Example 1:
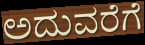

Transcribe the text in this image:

ಅದುವರೆಗೆ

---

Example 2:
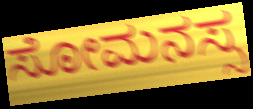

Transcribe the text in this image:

ಸೋಮನಸ್ಸ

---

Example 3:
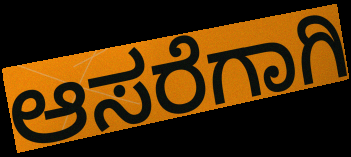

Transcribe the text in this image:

ಆಸರೆಗಾಗಿ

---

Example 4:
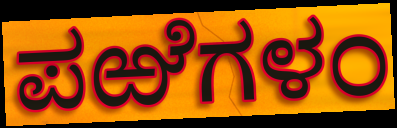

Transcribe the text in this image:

ಪಱೆಗಳಂ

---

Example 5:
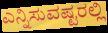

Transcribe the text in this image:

ಎನ್ನಿಸುವಷ್ಟರಲ್ಲಿ